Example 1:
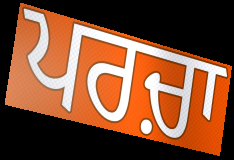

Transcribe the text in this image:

ਪਰਚ਼ਾ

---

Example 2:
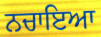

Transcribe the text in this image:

ਨਚਾਇਆ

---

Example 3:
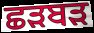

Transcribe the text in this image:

ਛੜਬੜ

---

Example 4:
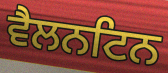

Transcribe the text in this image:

ਵੈਲਨਟਿਨ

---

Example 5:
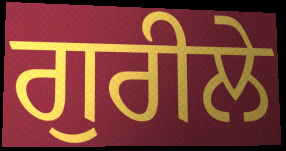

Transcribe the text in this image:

ਗੁਰੀਲੇ